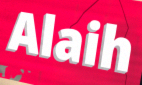
Alaih